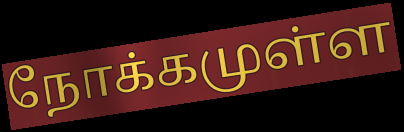
நோக்கமுள்ள